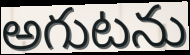
అగుటను